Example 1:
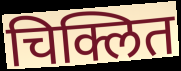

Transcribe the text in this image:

चिक्लित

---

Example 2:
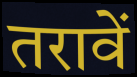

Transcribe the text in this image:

तरावें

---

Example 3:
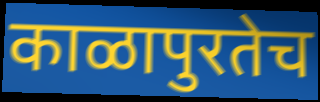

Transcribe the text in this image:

काळापुरतेच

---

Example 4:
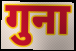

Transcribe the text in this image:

गुना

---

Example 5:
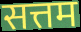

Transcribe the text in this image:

सत्तम